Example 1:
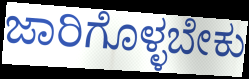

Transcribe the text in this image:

ಜಾರಿಗೊಳ್ಳಬೇಕು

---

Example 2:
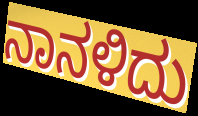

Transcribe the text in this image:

ನಾನಳಿದು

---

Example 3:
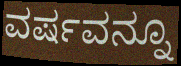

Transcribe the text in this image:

ವರ್ಷವನ್ನೂ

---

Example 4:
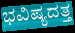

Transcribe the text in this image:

ಭವಿಷ್ಯದತ್ತ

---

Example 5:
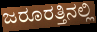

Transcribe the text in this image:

ಜರೂರತ್ತಿನಲ್ಲಿ